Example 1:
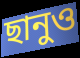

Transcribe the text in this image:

ছানুও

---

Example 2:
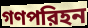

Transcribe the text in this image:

গণপরিহন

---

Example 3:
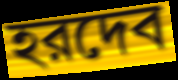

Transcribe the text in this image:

হরদেব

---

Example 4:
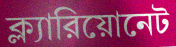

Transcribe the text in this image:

ক্ল্যারিয়োনেট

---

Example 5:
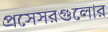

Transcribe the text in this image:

প্রসেসরগুলোর